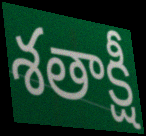
శతాక్షీ